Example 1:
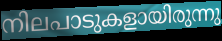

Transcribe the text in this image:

നിലപാടുകളായിരുന്നു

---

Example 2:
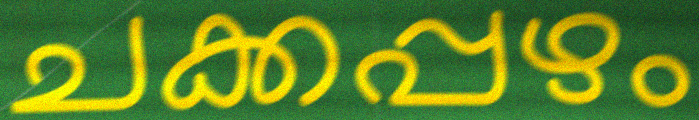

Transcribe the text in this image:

ചക്കപ്പഴം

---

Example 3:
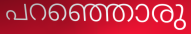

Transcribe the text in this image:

പറഞ്ഞൊരു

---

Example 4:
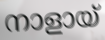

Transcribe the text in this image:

നാളായ്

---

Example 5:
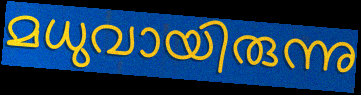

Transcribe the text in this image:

മധുവായിരുന്നു